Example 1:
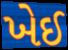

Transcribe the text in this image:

ખેઈ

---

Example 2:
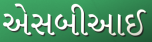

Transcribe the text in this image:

એસબીઆઈ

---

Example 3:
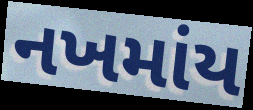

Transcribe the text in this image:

નખમાંય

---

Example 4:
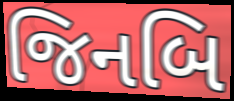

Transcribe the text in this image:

જિનબિ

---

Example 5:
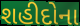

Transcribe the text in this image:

શહીદોના